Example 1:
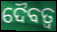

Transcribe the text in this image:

ଦୈବତ୍ଵ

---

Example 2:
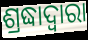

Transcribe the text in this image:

ଶ୍ରଦ୍ଧାଦ୍ୱାରା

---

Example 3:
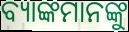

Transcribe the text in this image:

ବ୍ୟାଙ୍କମାନଙ୍କୁ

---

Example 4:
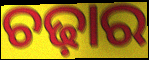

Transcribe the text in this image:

ଚଢ଼ାର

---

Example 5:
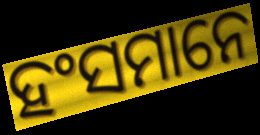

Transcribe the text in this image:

ହଂସମାନେ